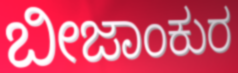
ಬೀಜಾಂಕುರ